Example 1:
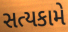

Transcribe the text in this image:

સત્યકામે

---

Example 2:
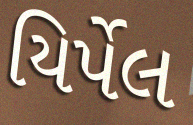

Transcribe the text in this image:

યિર્પેલ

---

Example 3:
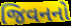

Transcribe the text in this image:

જિવનનો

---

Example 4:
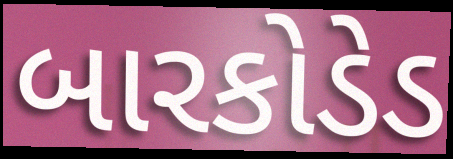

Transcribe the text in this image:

બારકોડેડ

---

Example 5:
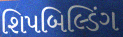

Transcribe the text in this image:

શિપબિલ્ડિંગ